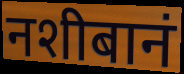
नशीबानं